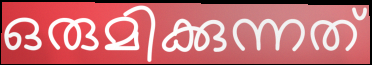
ഒരുമിക്കുന്നത്